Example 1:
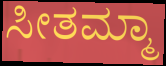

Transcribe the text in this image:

ಸೀತಮ್ಮಾ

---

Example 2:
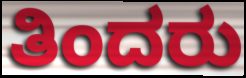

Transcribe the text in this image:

ತಿಂದರು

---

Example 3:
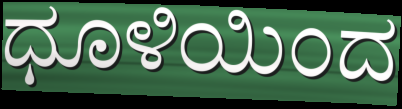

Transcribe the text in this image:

ಧೂಳಿಯಿಂದ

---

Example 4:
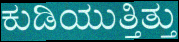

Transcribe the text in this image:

ಕುಡಿಯುತ್ತಿತ್ತು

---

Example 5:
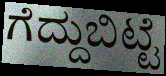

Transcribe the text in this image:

ಗೆದ್ದುಬಿಟ್ಟೆ